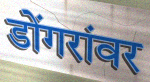
डोंगरांवर